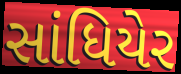
સાંધિયેર